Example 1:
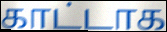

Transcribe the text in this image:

காட்டாக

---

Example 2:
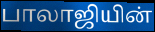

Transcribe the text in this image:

பாலாஜியின்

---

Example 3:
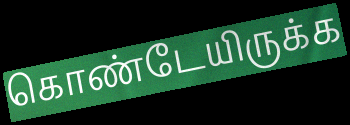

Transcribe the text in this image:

கொண்டேயிருக்க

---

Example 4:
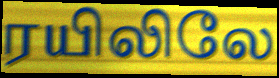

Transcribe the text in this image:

ரயிலிலே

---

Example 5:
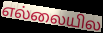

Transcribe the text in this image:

எல்லையில